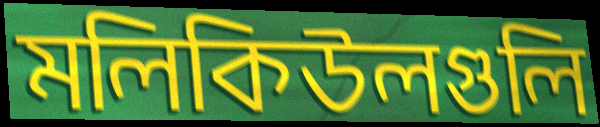
মলিকিউলগুলি